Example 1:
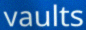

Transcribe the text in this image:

vaults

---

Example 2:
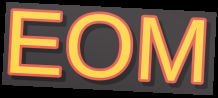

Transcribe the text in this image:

EOM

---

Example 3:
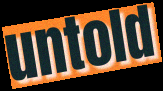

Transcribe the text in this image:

untold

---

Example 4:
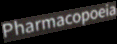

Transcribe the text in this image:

Pharmacopoeia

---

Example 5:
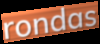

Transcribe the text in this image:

rondas